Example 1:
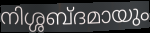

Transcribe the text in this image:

നിശ്ശബ്ദമായും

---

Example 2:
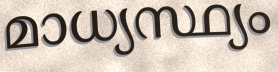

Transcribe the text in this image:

മാധ്യസ്ഥ്യം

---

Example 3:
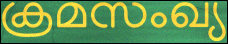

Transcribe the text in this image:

ക്രമസംഖ്യ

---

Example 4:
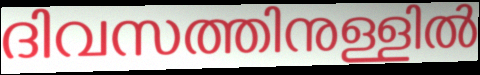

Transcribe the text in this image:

ദിവസത്തിനുള്ളിൽ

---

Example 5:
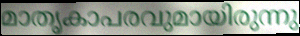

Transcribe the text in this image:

മാതൃകാപരവുമായിരുന്നു